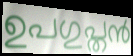
ഉപഗുപ്തൻ